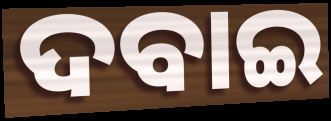
ଦବାଇ